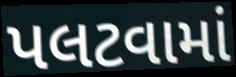
પલટવામાં